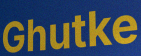
Ghutke